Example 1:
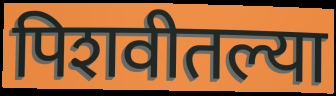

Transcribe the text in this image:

पिशवीतल्या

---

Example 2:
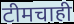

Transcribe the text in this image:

टीमचाही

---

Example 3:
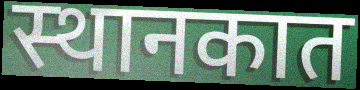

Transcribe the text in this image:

स्थानकात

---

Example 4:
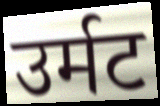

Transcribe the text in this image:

उर्मट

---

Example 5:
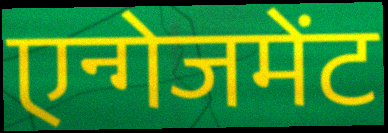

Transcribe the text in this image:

एन्गेजमेंट